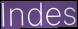
Indes